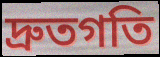
দ্রুতগতি